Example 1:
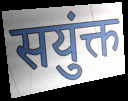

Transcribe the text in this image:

सयुंक्त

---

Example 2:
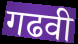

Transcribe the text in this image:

गढवी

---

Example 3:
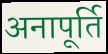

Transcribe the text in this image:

अनापूर्ति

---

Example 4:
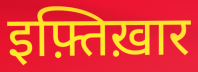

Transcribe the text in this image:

इफ़्तिख़ार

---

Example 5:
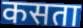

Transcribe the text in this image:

कसता